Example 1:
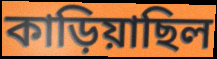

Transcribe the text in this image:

কাড়িয়াছিল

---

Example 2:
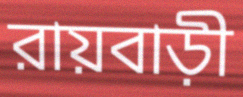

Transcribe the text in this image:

রায়বাড়ী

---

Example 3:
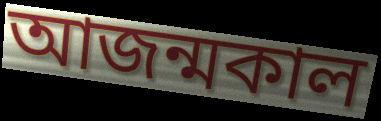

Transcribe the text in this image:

আজন্মকাল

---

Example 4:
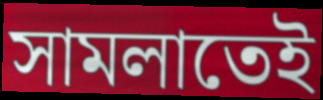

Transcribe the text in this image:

সামলাতেই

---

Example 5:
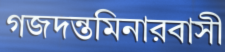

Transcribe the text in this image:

গজদন্তমিনারবাসী